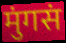
मुंगसं